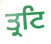
ਤ੍ਰਟਿ